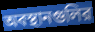
অবস্থানগুলির